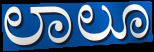
ಲಾಲೂ